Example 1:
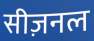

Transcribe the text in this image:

सीज़नल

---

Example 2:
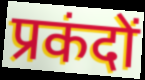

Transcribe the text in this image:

प्रकंदों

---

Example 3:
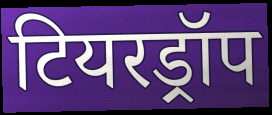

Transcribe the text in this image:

टियरड्रॉप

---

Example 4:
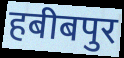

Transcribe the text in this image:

हबीबपुर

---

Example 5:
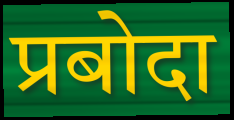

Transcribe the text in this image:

प्रबोदा